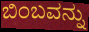
ಬಿಂಬವನ್ನು